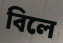
বিলে